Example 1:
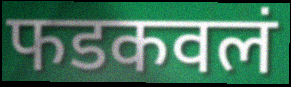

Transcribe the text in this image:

फडकवलं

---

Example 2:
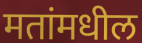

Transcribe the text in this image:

मतांमधील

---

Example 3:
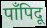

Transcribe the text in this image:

पाँपिदू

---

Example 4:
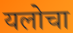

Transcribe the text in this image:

यलोचा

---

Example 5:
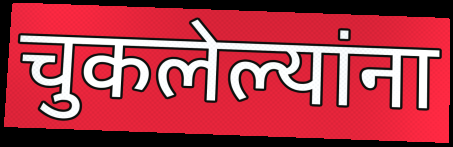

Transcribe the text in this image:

चुकलेल्यांना